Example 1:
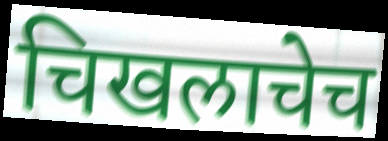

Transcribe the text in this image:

चिखलाचेच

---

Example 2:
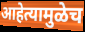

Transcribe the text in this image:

आहेत्यामुळेच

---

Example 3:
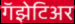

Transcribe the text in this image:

गॅझेटिअर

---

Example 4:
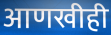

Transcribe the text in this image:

आणखीही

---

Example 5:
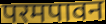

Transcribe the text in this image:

परमपावन